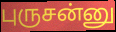
புருசன்னு